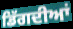
ਡਿੱਗਦੀਆਂ